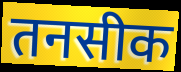
तनसीक